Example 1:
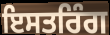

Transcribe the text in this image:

ਇਸਤਰਿੰਗ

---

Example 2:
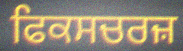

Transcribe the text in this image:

ਫਿਕਸਚਰਜ਼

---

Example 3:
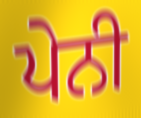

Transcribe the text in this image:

ਪੇਨੀ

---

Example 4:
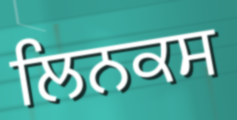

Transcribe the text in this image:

ਲਿਨਕਸ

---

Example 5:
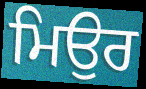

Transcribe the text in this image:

ਮਿਉਰ